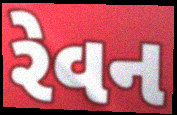
રેવન